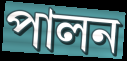
পালন